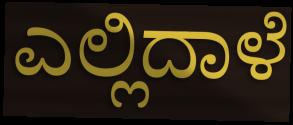
ಎಲ್ಲಿದಾಳೆ